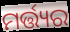
ମର୍ତ୍ତ୍ୟର